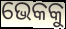
ଭେକକୁ